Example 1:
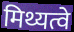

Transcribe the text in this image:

मिथ्यत्वे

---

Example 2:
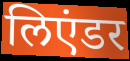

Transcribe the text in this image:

लिएंडर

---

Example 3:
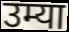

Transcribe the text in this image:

उम्या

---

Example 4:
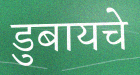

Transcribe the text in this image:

डुबायचे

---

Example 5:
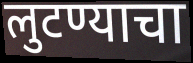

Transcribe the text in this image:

लुटण्याचा